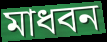
মাধবন